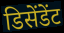
डिसेंडेंट